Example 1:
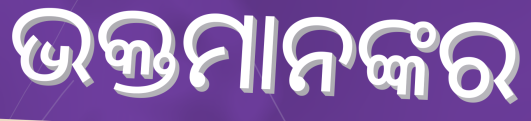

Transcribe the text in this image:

ଭକ୍ତମାନଙ୍କର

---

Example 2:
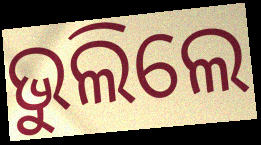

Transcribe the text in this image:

ଭୁଲିଲେ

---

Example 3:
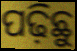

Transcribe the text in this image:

ପଢ଼ିଛୁ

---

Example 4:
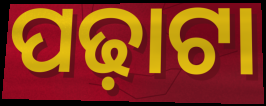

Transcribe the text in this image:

ପଢ଼ାଟା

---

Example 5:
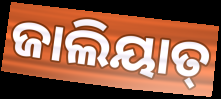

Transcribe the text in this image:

ଜାଲିୟାତ୍